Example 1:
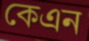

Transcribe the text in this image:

কেএন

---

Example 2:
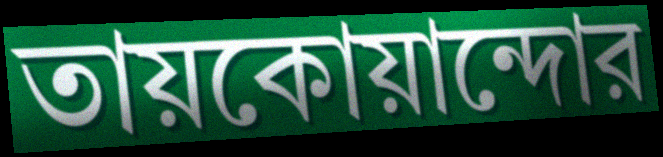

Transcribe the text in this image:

তায়কোয়ান্দোর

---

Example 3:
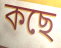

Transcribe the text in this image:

কছে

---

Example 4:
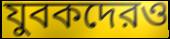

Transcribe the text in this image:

যুবকদেরও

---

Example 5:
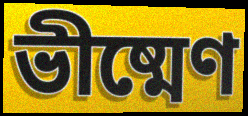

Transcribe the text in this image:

ভীষ্মেণ